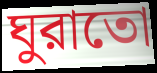
ঘুরাতো